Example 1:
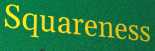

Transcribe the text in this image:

Squareness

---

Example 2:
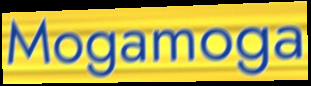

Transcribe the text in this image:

Mogamoga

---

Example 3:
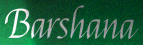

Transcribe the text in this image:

Barshana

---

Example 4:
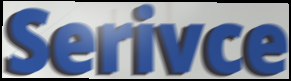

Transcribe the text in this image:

Serivce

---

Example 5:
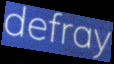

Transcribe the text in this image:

defray